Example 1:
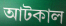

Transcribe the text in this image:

আটকাল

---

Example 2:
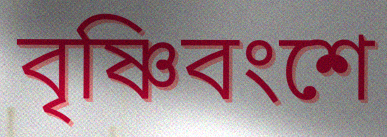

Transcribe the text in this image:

বৃষ্ণিবংশে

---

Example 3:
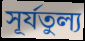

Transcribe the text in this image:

সূর্যতুল্য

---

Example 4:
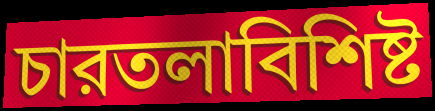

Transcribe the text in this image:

চারতলাবিশিষ্ট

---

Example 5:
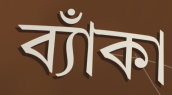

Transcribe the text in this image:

ব্যাঁকা